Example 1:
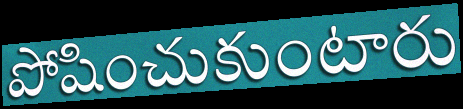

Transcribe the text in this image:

పోషించుకుంటారు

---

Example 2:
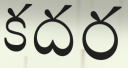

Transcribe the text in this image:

కదర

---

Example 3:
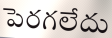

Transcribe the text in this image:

పెరగలేదు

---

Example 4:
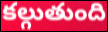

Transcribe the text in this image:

కల్గుతుంది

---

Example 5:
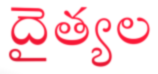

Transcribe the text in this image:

దైత్యల